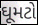
ઘૂમટો